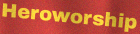
Heroworship